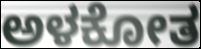
ಅಳಕೋತ